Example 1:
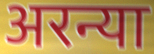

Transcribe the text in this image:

अरन्या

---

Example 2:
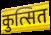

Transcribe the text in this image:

कुत्सित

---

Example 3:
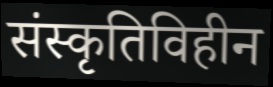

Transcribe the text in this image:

संस्कृतिविहीन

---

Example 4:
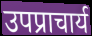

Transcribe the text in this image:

उपप्राचार्य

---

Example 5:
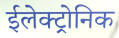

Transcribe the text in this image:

ईलेक्ट्रोनिक